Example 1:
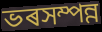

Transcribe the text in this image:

ভৰসম্পন্ন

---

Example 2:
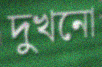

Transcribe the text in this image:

দুখনো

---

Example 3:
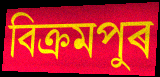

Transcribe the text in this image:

বিক্ৰমপুৰ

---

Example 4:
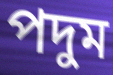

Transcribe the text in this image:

পদুম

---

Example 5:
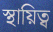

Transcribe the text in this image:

স্থায়িত্ব